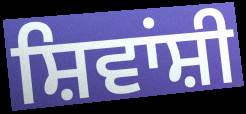
ਸ਼ਿਵਾਂਸ਼ੀ